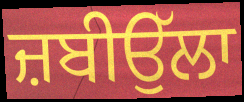
ਜ਼ਬੀਉੱਲਾ